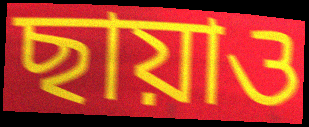
ছায়াও